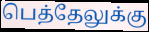
பெத்தேலுக்கு